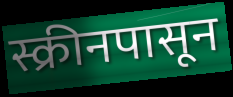
स्क्रीनपासून